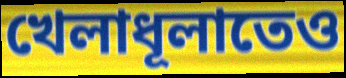
খেলাধূলাতেও